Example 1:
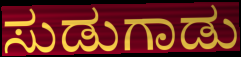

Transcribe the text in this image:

ಸುಡುಗಾಡು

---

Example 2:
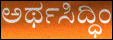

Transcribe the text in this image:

ಅರ್ಥಸಿದ್ಧಿಂ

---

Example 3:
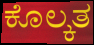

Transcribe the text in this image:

ಕೊಲ್ಕತ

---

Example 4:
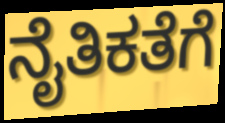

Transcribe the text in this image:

ನೈತಿಕತೆಗೆ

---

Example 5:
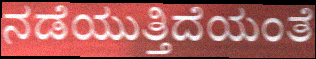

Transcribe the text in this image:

ನಡೆಯುತ್ತಿದೆಯಂತೆ